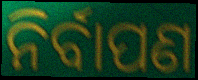
ନିର୍ବାପଣ